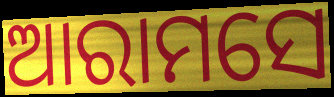
ଆରାମସେ